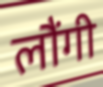
लौंगी